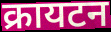
क्रायटन